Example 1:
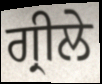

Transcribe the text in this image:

ਗ੍ਰੀਲੇ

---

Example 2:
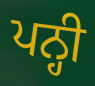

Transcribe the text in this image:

ਪਨ੍ਹੀ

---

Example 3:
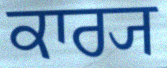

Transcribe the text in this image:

ਕਾਰ੍ਯ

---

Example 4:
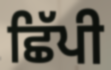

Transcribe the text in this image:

ਛਿੱਪੀ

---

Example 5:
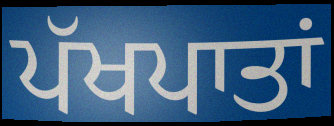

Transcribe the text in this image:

ਪੱਖਪਾਤਾਂ